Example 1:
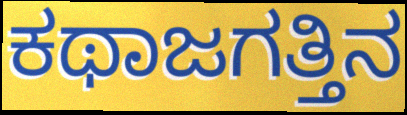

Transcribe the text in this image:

ಕಥಾಜಗತ್ತಿನ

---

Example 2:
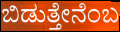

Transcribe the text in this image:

ಬಿಡುತ್ತೇನೆಂಬ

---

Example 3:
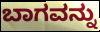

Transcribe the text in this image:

ಬಾಗವನ್ನು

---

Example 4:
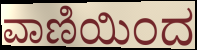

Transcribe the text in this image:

ವಾಣಿಯಿಂದ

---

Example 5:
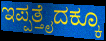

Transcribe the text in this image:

ಇಪ್ಪತ್ತೈದಕ್ಕೂ